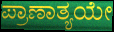
ಪ್ರಾಣಾತ್ಯಯೇ